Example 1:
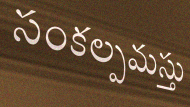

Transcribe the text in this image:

సంకల్పమస్తు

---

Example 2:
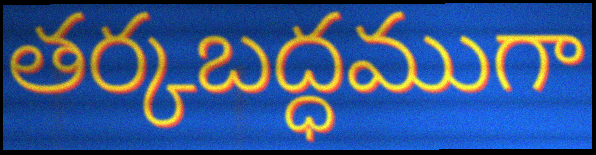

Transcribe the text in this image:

తర్కబద్ధముగా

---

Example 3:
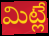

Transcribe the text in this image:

మిట్లే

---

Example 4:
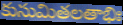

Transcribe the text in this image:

కుసుమితలతాభిః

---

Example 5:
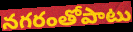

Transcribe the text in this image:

నగరంతోపాటు